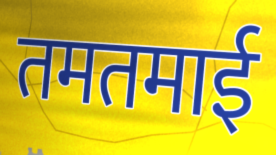
तमतमाई